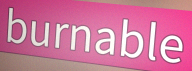
burnable